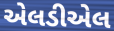
એલડીએલ